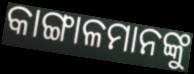
କାଙ୍ଗାଳମାନଙ୍କୁ